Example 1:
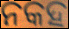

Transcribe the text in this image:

ନକହ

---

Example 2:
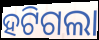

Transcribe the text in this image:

ହଟିଗଲା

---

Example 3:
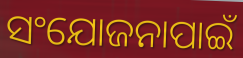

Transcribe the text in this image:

ସଂଯୋଜନାପାଇଁ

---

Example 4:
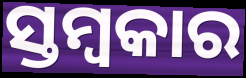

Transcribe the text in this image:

ସ୍ତମ୍ବକାର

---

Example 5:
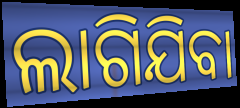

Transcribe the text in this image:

ଲାଗିଯିବା